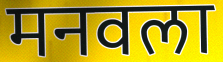
मनवला